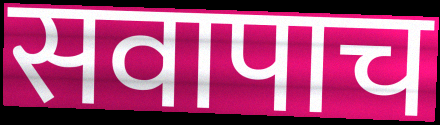
सवापाच